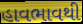
હાવભાવથી